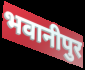
भवानीपुर